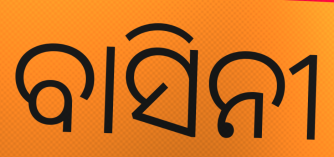
ବାସିନୀ